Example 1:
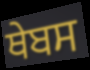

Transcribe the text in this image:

ਥੇਬਸ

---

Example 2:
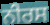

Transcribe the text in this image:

ਨੀਰਸ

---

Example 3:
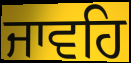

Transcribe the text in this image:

ਜਾਵਹਿ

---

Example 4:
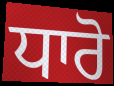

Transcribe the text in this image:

ਧਾਰੋ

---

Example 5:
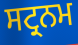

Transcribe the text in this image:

ਸਟ੍ਰਨਮ